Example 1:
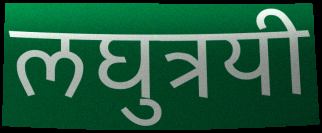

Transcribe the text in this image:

लघुत्रयी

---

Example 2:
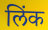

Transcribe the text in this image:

लिंक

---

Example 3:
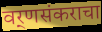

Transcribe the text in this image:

वर्णसंकराचा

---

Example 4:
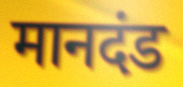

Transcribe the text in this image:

मानदंड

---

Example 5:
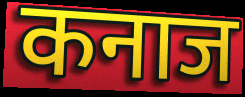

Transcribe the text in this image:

कनाज